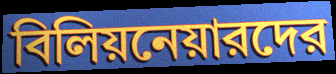
বিলিয়নেয়ারদের